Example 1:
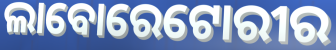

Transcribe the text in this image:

ଲାବୋରେଟୋରୀର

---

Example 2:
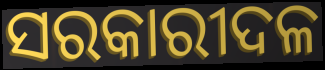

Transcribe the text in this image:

ସରକାରୀଦଳ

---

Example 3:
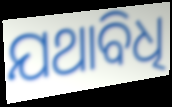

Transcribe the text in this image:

ଯଥାବିଧି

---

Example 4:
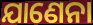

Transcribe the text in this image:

ଯାଣେନା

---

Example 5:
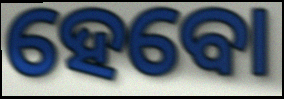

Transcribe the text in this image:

ହେବୋ